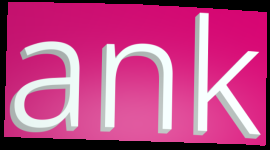
ank